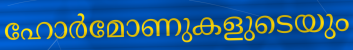
ഹോർമോണുകളുടെയും